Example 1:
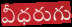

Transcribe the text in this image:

వీధరుగు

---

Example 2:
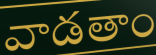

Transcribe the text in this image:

వాడతాం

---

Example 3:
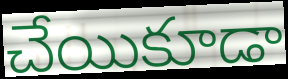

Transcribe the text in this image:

చేయికూడా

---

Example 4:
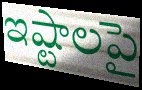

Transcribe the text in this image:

ఇష్టాలపై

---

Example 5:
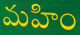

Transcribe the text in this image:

మహిం